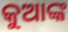
କୁଆଙ୍କ